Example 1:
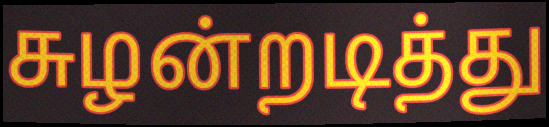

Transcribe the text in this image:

சுழன்றடித்து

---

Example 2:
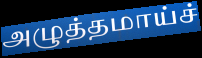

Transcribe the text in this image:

அழுத்தமாய்ச்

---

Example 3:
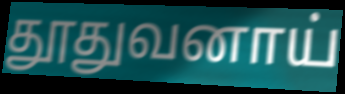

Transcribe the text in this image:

தூதுவனாய்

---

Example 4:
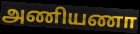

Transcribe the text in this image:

அணியணா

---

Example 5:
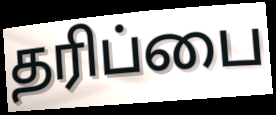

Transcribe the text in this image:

தரிப்பை